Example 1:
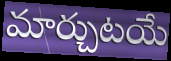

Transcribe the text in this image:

మార్చుటయే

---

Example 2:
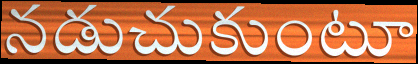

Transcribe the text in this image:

నడుచుకుంటూ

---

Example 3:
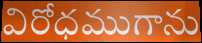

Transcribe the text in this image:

విరోధముగాను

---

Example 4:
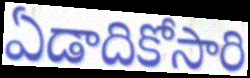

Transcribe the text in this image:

ఏడాదికోసారి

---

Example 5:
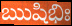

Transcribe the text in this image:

ఋషిభిః